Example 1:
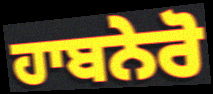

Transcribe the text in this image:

ਹਾਬਨੇਰੋ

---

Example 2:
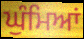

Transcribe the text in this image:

ਘੁੰਮਿਆਂ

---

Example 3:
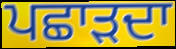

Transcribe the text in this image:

ਪਛਾੜਦਾ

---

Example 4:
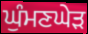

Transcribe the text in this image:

ਘੁੰਮਣਘੇੜ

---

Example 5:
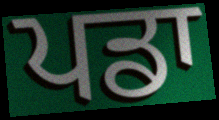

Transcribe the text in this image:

ਪਡਾ